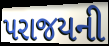
પરાજયની